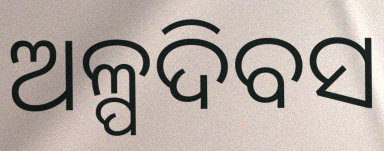
ଅଳ୍ପଦିବସ